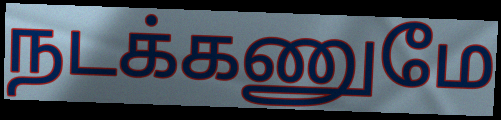
நடக்கணுமே